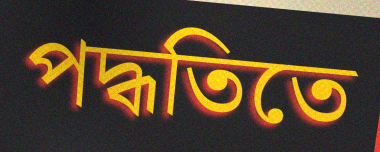
পদ্ধতিতে